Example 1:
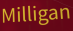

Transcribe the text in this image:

Milligan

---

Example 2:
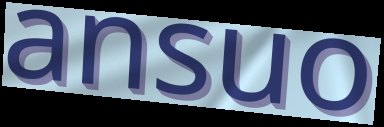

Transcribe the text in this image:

ansuo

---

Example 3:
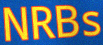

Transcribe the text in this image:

NRBs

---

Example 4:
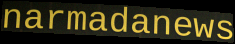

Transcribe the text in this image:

narmadanews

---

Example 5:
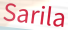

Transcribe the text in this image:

Sarila